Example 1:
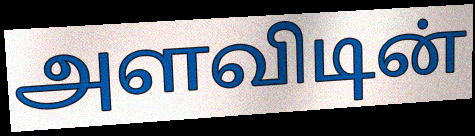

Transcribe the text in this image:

அளவிடின்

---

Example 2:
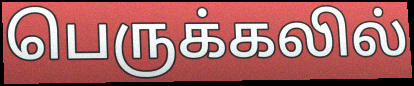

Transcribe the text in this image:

பெருக்கலில்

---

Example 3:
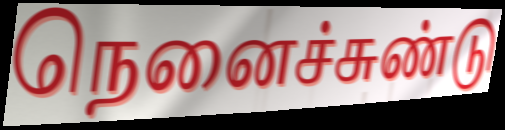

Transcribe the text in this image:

நெனைச்சுண்டு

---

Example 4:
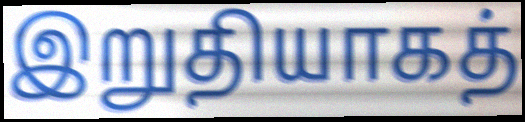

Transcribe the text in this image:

இறுதியாகத்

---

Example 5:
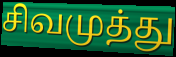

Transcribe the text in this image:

சிவமுத்து